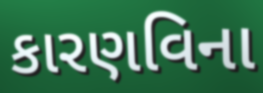
કારણવિના